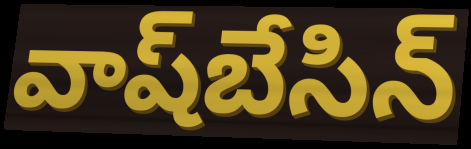
వాష్‌బేసిన్